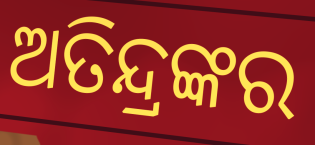
ଅତିନ୍ଦ୍ରଙ୍କର